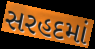
સરહદમાં